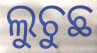
ଲୁଚୁଛ